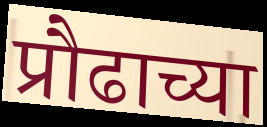
प्रौढाच्या